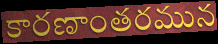
కారణాంతరమున